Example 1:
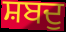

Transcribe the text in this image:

ਸ਼ਬਦੁ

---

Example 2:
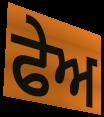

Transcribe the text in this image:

ਫੇਅ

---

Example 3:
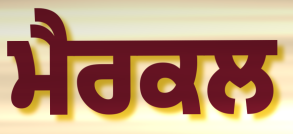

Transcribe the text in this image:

ਮੈਰਕਲ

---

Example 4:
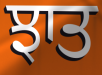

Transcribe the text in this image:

ਝਾਤ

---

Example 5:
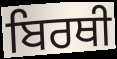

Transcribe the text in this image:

ਬਿਰਥੀ